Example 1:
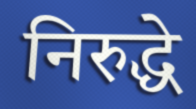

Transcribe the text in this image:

निरुद्धे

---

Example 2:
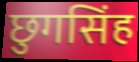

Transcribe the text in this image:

छुगसिंह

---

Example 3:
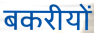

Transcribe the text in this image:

बकरीयों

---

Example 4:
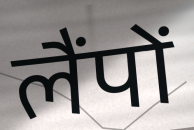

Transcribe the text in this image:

लैंपों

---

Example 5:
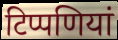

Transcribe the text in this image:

टिप्पणियां